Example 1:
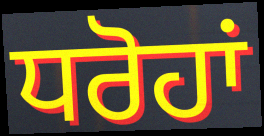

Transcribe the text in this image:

ਧਰੋਹਾਂ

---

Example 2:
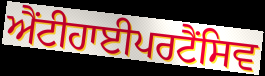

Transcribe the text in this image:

ਐਂਟੀਹਾਈਪਰਟੈਂਸਿਵ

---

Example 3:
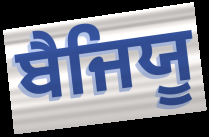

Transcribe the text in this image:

ਬੈਜਿਯੂ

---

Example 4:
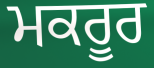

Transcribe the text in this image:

ਮਕਰੂਰ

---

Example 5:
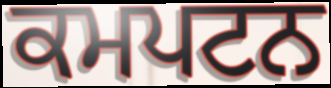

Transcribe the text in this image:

ਕਮਪਟਨ